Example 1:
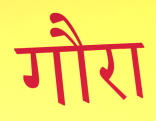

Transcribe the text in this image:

गौरा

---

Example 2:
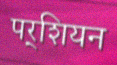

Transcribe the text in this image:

पर्शियन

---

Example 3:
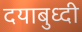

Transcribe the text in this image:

दयाबुध्दी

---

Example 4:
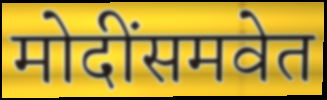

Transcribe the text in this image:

मोदींसमवेत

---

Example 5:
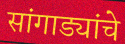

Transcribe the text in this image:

सांगाड्यांचे